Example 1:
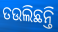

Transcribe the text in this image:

ତଉଲିଛନ୍ତି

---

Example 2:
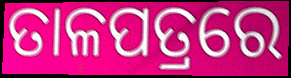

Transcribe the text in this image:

ତାଳପତ୍ରରେ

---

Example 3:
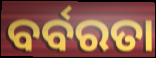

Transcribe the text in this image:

ବର୍ବରତା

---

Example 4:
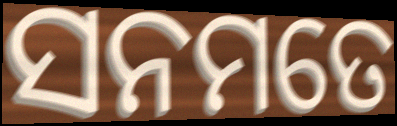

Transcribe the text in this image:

ସନମତେ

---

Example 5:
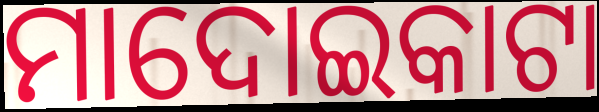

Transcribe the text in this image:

ମାଦୋଇକାଟା